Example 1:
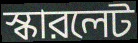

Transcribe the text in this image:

স্কারলেট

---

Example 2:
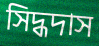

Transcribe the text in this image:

সিদ্ধদাস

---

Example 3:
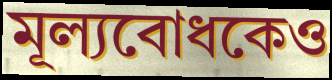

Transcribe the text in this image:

মূল্যবোধকেও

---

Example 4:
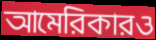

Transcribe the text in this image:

আমেরিকারও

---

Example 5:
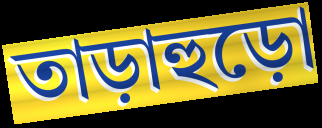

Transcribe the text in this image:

তাড়াহুড়ো